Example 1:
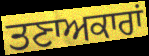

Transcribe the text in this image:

ਤਣਾਅਕਾਰਾਂ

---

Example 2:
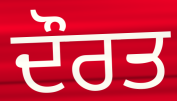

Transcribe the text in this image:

ਦੌਰਤ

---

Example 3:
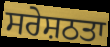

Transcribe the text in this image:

ਸਰੇਸ਼ਠਤਾ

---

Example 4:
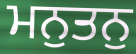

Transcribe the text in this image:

ਮਨੁਤਨੁ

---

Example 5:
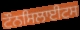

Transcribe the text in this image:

ਟੌਨਸਿਲਾਈਟਸ